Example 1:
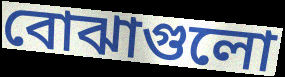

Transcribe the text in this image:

বোঝাগুলো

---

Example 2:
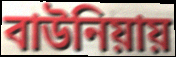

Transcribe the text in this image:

বাউনিয়ায়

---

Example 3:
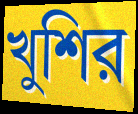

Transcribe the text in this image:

খুশির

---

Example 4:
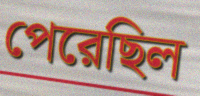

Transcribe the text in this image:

পেরেছিল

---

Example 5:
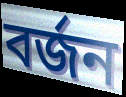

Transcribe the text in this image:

বর্জন